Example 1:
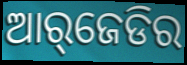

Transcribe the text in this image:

ଆର୍‌ଜେଡିର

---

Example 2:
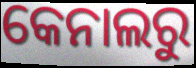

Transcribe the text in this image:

କେନାଲରୁ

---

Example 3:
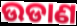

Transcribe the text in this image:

ଉଡାଣ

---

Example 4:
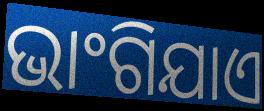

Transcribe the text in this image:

ଭାଂଗିଯାଏ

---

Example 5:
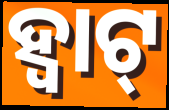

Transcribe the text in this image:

ହ୍ବାଟ୍